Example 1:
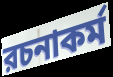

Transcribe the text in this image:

রচনাকর্ম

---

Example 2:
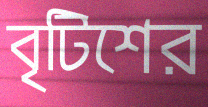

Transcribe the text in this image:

বৃটিশের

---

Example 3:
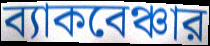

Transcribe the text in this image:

ব্যাকবেঞ্চার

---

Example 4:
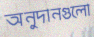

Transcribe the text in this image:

অনুদানগুলো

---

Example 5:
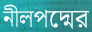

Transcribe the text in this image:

নীলপদ্মের